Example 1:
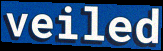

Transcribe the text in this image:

veiled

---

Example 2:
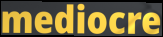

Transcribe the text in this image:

mediocre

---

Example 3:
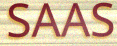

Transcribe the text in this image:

SAAS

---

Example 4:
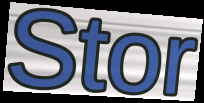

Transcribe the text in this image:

Stor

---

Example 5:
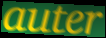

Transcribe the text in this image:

auter